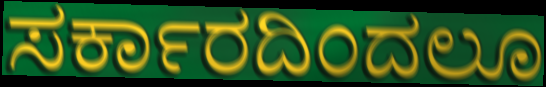
ಸರ್ಕಾರದಿಂದಲೂ